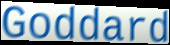
Goddard